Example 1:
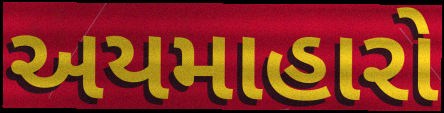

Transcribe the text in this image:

અયમાહારો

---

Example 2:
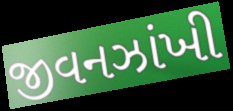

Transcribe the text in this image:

જીવનઝાંખી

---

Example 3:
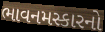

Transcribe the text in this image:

ભાવનમસ્કારનો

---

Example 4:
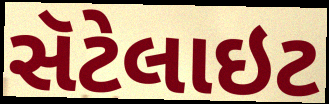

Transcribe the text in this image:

સૅટેલાઇટ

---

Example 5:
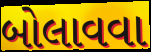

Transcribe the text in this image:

બોલાવવા